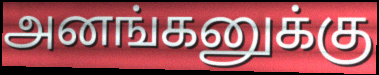
அனங்கனுக்கு